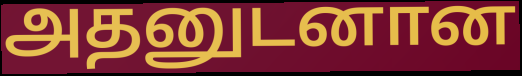
அதனுடனான